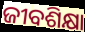
ଜୀବଶିକ୍ଷା